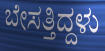
ಬೇಸತ್ತಿದ್ದಳು